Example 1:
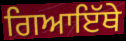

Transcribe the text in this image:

ਗਿਆਇੱਥੇ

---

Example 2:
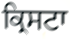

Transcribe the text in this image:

ਕ੍ਰਿਸਟਾ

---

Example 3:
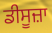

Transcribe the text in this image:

ਡੀਸੂਜ਼ਾ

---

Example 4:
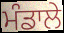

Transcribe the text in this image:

ਮੰਡਾਲੇ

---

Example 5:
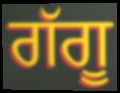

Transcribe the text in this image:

ਗੱਗੂ